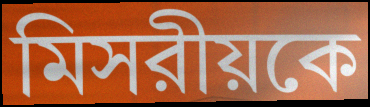
মিসরীয়কে